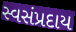
સ્વસંપ્રદાય